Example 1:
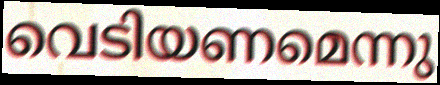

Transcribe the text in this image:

വെടിയണമെന്നു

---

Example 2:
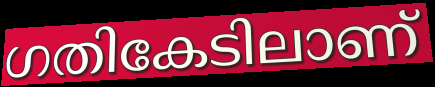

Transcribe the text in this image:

ഗതികേടിലാണ്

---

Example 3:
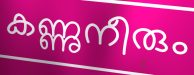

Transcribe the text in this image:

കണ്ണുനീരും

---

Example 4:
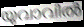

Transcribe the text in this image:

യുവാവിൽ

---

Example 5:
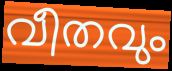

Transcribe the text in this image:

വീതവും